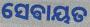
ସେଵାୟତ